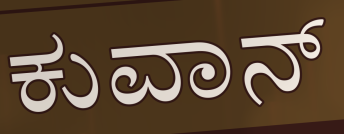
ಕುವಾನ್